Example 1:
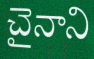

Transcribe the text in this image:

చైనాని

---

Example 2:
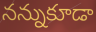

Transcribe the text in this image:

నన్నుకూడా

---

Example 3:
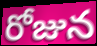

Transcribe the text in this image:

రోజున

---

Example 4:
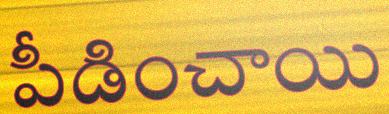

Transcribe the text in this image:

పీడించాయి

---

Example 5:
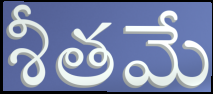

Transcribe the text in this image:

శీతమే